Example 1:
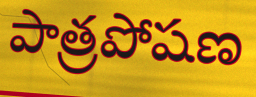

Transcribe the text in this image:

పాత్రపోషణ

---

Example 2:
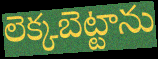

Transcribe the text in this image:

లెక్కబెట్టాను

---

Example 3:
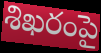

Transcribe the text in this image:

శిఖరంపై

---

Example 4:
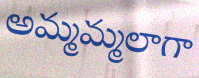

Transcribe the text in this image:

అమ్మమ్మలాగా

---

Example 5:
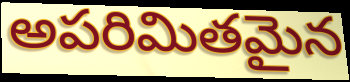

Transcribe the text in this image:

అపరిమితమైన